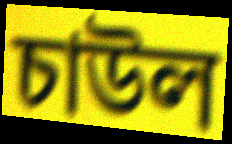
চাউল